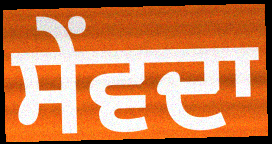
ਸੇਂਵਦਾ